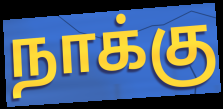
நாக்கு